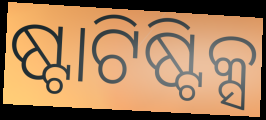
ଷ୍ଟାଟିଷ୍ଟିକ୍ସ